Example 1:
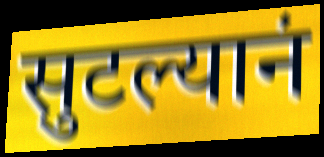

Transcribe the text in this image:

सुटल्यानं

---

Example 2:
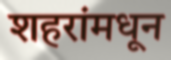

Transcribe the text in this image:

शहरांमधून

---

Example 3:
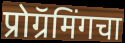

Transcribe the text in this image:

प्रोग्रॅमिंगचा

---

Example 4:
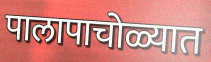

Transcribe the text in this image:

पालापाचोळ्यात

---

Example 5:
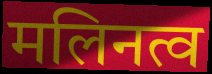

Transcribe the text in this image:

मलिनत्व